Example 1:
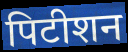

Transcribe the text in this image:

पिटीशन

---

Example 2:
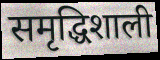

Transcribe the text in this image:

समृद्धिशाली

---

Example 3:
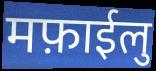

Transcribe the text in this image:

मफ़ाईलु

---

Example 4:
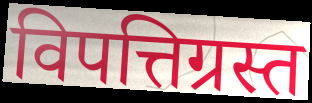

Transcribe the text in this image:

विपत्तिग्रस्त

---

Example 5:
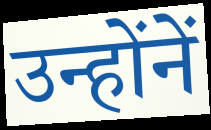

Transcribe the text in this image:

उन्‍होंनें